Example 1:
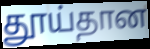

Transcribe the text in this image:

தூய்தான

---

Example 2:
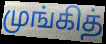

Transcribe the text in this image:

முங்கித்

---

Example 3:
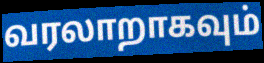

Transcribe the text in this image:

வரலாறாகவும்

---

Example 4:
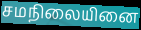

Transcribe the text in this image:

சமநிலையினை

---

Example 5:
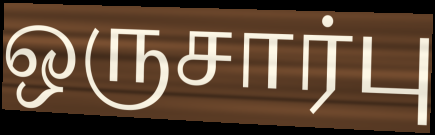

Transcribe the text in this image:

ஒருசார்பு